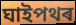
ঘাইপথৰ